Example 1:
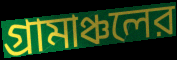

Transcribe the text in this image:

গ্রামাঞ্চলের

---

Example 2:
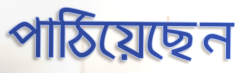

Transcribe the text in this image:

পাঠিয়েছেন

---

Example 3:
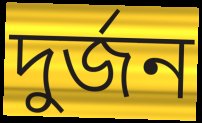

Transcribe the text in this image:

দুর্জন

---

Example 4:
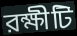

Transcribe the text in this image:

রক্ষীটি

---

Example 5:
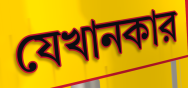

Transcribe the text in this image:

যেখানকার